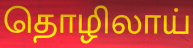
தொழிலாய்